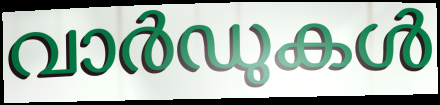
വാർഡുകൾ